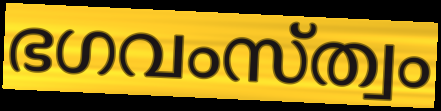
ഭഗവംസ്ത്വം